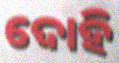
ଦୋହି